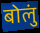
बोलुं